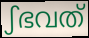
ഽഭവത്